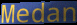
Medan